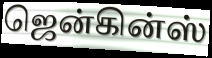
ஜென்கின்ஸ்